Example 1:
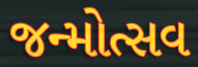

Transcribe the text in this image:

જન્મોત્સવ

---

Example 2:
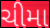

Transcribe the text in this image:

ચીમા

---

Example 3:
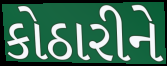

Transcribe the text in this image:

કોઠારીને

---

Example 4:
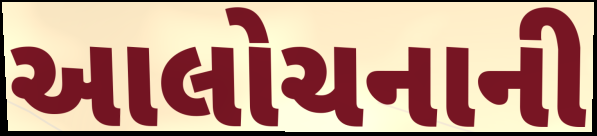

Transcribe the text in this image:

આલોચનાની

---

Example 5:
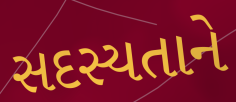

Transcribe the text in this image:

સદસ્યતાને